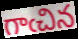
గాఁచిన